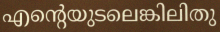
എന്റെയുടലെങ്കിലിതു